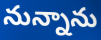
నున్నాను